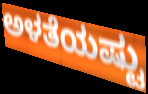
ಅಳತೆಯಷ್ಟು